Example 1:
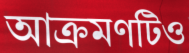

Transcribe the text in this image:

আক্রমণটিও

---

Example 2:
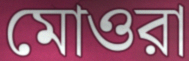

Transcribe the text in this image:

মোওরা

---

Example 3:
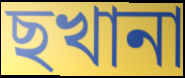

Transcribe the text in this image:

ছখানা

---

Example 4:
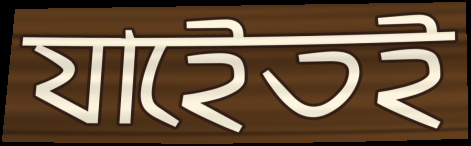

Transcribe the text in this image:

যাইেতই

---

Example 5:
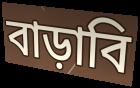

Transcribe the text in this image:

বাড়াবি